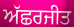
ਅੱਛਰਜੀਤ